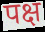
पक्ष